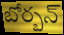
బోర్బన్